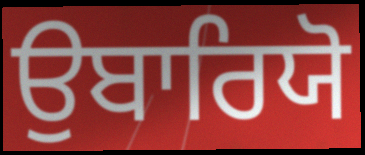
ਉਬਾਰਿਯੋ